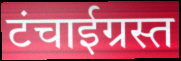
टंचाईग्रस्त